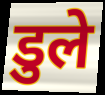
डुले